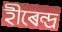
হীৰেন্দ্ৰ